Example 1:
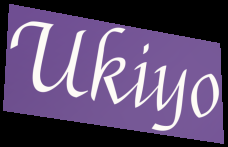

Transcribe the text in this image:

Ukiyo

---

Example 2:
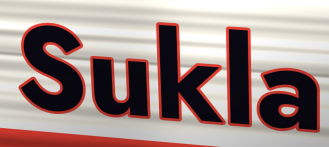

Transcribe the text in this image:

Sukla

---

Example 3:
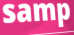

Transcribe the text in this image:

samp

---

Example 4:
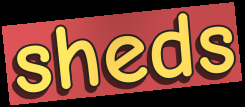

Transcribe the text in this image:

sheds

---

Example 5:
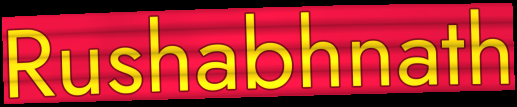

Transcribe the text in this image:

Rushabhnath